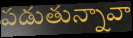
పడుతున్నావా